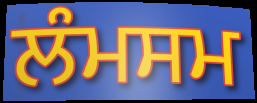
ਲੰਮਸਮ